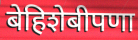
बेहिशेबीपणा